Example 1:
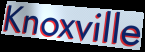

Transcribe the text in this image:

Knoxville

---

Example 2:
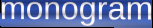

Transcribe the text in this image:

monogram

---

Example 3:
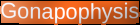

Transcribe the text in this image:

Gonapophysis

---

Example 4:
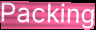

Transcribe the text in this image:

Packing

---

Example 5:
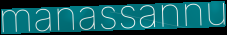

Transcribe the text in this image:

manassannu